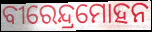
ବୀରେନ୍ଦ୍ରମୋହନ